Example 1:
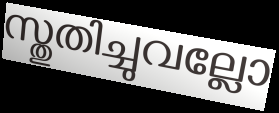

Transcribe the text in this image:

സ്തുതിച്ചുവല്ലോ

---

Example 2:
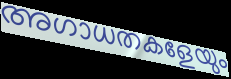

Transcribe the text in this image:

അഗാധതകളേയും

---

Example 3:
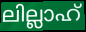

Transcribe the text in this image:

ലില്ലാഹ്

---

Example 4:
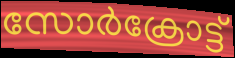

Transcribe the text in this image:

സോർക്രോട്ട്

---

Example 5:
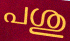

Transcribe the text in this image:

പശു